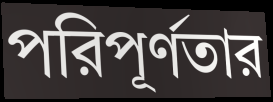
পরিপূর্ণতার